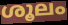
ശൂലം